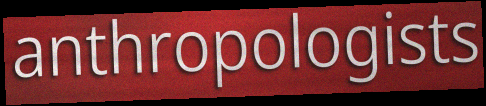
anthropologists